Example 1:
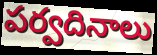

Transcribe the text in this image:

పర్వదినాలు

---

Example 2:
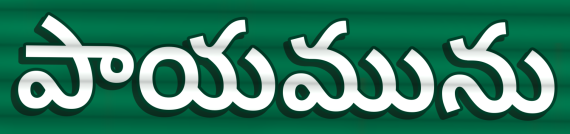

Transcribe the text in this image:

పాయమును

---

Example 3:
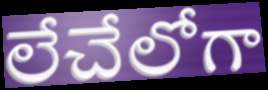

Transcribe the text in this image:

లేచేలోగా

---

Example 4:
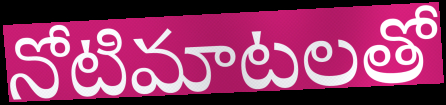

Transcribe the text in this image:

నోటిమాటలతో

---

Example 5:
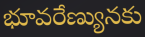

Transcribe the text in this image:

భూవరేణ్యునకు